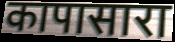
कापासारा